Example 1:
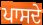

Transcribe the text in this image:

ਪਾਸਦੇ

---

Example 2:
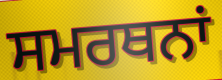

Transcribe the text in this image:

ਸਮਰਥਨਾਂ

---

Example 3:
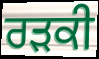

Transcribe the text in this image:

ਰੜਕੀ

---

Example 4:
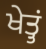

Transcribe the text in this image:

ਖੇਤ੍ਤਂ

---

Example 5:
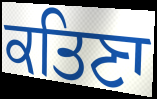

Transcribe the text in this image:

ਕਤਿਣਾ